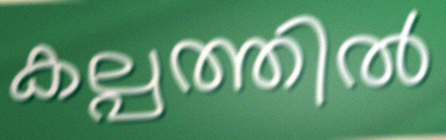
കല്പത്തിൽ